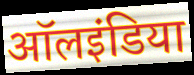
ऑलइंडिया